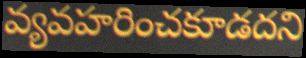
వ్యవహరించకూడదని